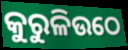
କୁରୁଳିଉଠେ